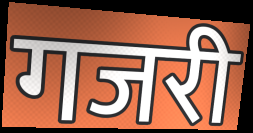
गजरी